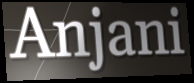
Anjani